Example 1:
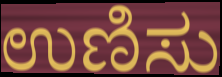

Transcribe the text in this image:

ಉಣಿಸು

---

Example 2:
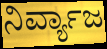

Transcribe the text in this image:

ನಿರ್ವ್ಯಾಜ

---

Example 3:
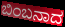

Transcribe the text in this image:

ಬಿಂಬನಾದ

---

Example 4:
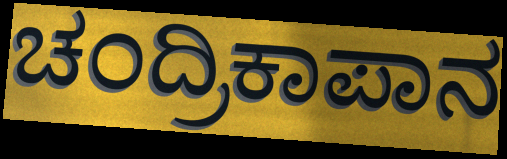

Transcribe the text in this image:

ಚಂದ್ರಿಕಾಪಾನ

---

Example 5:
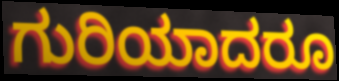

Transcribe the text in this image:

ಗುರಿಯಾದರೂ